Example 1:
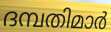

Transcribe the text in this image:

ദമ്പതിമാർ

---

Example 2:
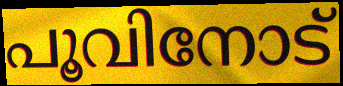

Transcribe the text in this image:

പൂവിനോട്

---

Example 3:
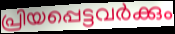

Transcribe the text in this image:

പ്രിയപ്പെട്ടവർക്കും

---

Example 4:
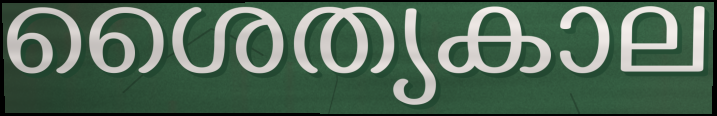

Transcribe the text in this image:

ശൈത്യകാല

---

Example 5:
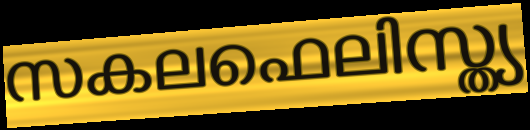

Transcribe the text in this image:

സകലഫെലിസ്ത്യ